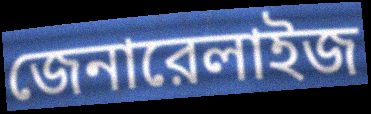
জেনারেলাইজ